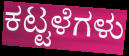
ಕಟ್ಟಳೆಗಳು